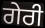
ਗੇਰੀ